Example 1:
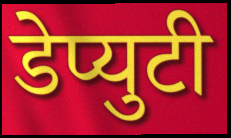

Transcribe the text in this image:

डेप्युटी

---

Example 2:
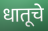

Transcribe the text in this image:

धातूचे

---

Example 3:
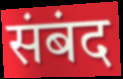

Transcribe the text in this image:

संबंद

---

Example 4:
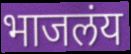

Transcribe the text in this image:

भाजलंय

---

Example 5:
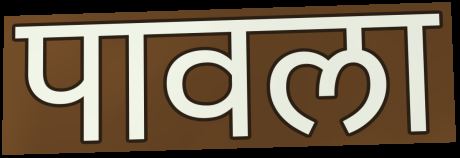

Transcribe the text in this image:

पावला